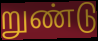
றுண்டு